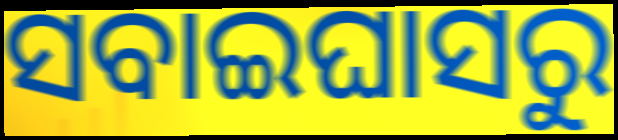
ସବାଇଘାସରୁ